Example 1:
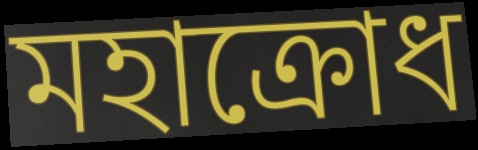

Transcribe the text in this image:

মহাক্রোধ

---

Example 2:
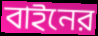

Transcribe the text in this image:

বাইনের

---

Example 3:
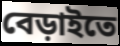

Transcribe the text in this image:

বেড়াইতে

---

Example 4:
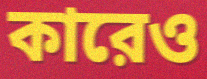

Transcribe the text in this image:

কারেও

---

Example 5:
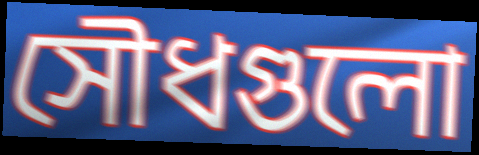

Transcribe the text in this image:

সৌধগুলো